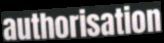
authorisation